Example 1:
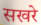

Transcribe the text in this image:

सखरे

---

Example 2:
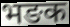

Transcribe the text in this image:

भङक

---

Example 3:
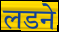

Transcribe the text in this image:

लडने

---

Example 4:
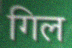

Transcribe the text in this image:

गिल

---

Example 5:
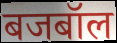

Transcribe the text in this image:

बजबॉल